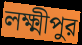
লক্ষ্মীপুর